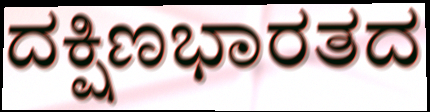
ದಕ್ಷಿಣಭಾರತದ